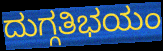
ದುಗ್ಗತಿಭಯಂ